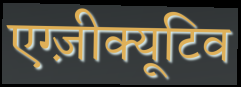
एग्ज़ीक्यूटिव